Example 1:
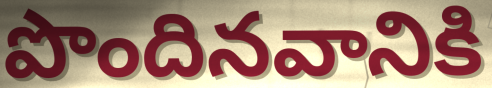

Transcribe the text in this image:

పొందినవానికి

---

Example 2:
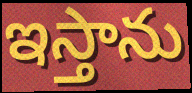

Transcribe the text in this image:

ఇస్తాను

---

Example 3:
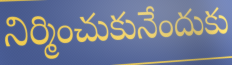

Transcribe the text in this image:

నిర్మించుకునేందుకు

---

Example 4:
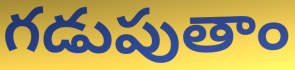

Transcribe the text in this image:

గడుపుతాం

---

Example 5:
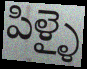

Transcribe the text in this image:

పిళ్ళై